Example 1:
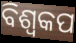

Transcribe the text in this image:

ବିଶ୍ବକପ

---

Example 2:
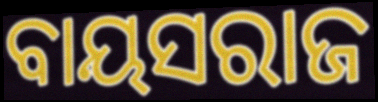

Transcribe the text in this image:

ବାୟସରାଜ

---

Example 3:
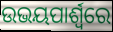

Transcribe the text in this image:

ଉଭୟପାର୍ଶ୍ବରେ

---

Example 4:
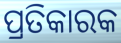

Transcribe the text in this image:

ପ୍ରତିକାରକ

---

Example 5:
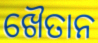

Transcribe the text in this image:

ଖୈତାନ